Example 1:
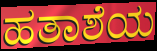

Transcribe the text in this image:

ಹತಾಶೆಯ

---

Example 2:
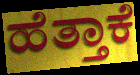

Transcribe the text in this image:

ಹೆತ್ತಾಕೆ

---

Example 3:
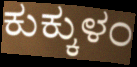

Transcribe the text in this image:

ಕುಕ್ಕುಳಂ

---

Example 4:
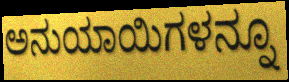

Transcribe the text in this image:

ಅನುಯಾಯಿಗಳನ್ನೂ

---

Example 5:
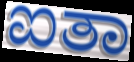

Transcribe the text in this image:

ಐತಾ